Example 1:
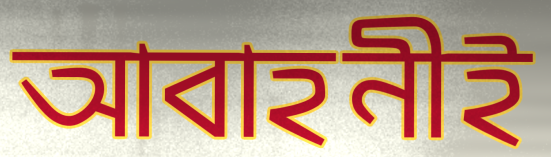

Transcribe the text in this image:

আবাহনীই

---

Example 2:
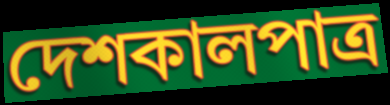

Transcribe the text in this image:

দেশকালপাত্র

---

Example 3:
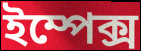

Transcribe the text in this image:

ইম্পেক্স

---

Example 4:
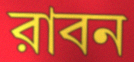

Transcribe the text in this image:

রাবন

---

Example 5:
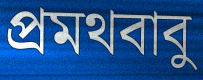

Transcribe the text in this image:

প্রমথবাবু